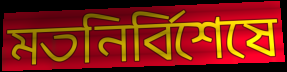
মতনির্বিশেষে